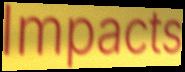
Impacts